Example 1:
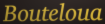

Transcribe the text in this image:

Bouteloua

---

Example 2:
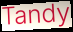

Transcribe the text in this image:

Tandy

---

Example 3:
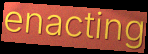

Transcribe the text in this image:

enacting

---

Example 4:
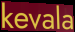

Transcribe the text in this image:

kevala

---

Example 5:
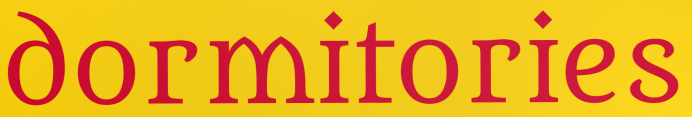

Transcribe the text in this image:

dormitories